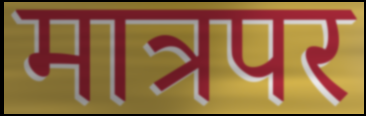
मात्रपर